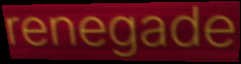
renegade